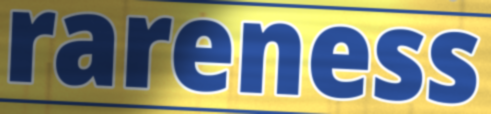
rareness